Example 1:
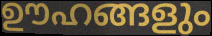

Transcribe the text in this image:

ഊഹങ്ങളും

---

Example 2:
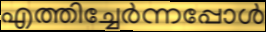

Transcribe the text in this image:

എത്തിച്ചേർന്നപ്പോൾ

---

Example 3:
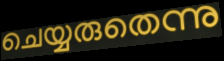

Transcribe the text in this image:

ചെയ്യരുതെന്നു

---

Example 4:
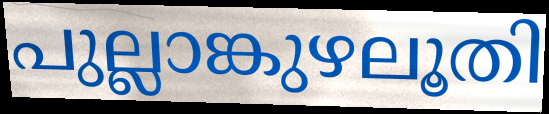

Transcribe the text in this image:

പുല്ലാങ്കുഴലൂതി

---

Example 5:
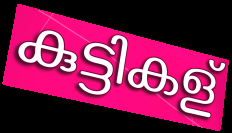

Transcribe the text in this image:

കുട്ടികള്